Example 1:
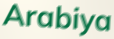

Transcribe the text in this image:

Arabiya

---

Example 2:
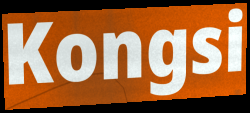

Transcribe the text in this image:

Kongsi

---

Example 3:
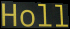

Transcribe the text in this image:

Holl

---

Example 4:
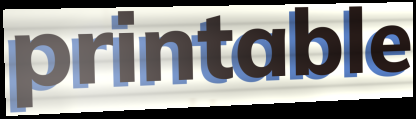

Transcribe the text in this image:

printable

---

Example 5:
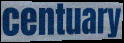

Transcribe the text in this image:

centuary